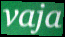
vaja